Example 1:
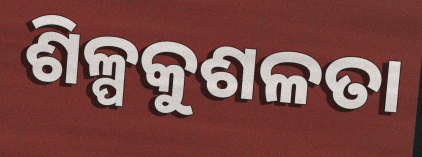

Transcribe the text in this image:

ଶିଳ୍ପକୁଶଳତା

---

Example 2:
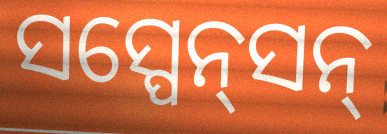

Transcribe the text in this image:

ସସ୍ପେନ୍‌ସନ୍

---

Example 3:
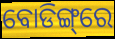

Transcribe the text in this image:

ବୋଡିଙ୍ଗ୍‌ରେ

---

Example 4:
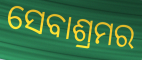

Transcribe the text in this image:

ସେବାଶ୍ରମର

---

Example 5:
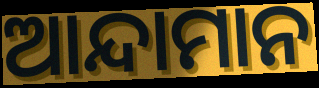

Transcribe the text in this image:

ଆନ୍ଦାମାନ